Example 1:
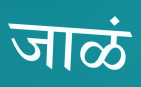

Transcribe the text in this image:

जाळं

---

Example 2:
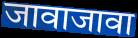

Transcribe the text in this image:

जावाजावा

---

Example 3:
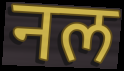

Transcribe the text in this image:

नल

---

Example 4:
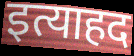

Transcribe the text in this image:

इत्याहद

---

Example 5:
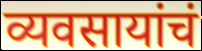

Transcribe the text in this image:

व्यवसायांचं